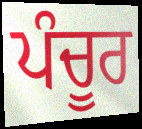
ਪੰਚੂਰ